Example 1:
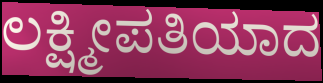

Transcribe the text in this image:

ಲಕ್ಷ್ಮೀಪತಿಯಾದ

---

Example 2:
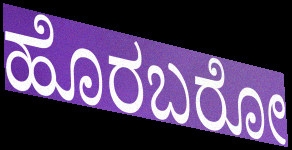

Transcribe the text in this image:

ಹೊರಬರೋ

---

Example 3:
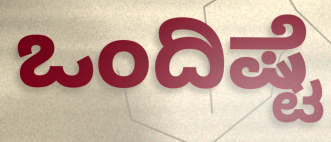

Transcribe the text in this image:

ಒಂದಿಷ್ಟೆ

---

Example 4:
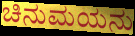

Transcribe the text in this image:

ಚಿನುಮಯನು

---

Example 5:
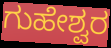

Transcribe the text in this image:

ಗುಹೇಶ್ವರ